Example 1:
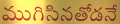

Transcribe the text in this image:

ముగిసినతోడనే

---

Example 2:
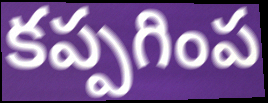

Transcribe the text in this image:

కప్పగింప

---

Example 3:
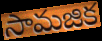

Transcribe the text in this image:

సామజిక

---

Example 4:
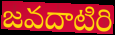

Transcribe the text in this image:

జవదాటిరి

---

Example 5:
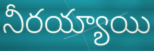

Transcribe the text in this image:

నీరయ్యాయి